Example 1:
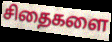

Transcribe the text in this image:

சிதைகளை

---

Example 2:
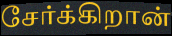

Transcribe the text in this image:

சேர்க்கிறான்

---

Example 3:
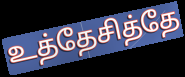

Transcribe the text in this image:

உத்தேசித்தே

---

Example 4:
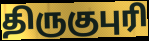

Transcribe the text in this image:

திருகுபுரி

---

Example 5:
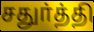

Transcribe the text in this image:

சதுர்த்தி